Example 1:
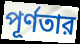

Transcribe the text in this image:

পূর্ণতার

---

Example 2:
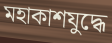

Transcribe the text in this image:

মহাকাশযুদ্ধে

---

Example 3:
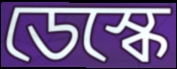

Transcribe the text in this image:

ডেস্কে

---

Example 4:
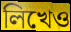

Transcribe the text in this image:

লিখেও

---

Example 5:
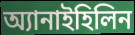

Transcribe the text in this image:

অ্যানাইহিলিন